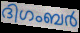
ദിഗംബർ